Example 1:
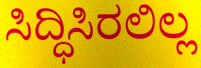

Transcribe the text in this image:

ಸಿದ್ಧಿಸಿರಲಿಲ್ಲ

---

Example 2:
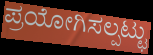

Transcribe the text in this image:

ಪ್ರಯೋಗಿಸಲ್ಪಟ್ಟು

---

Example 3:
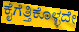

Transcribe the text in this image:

ಕೈಗೆತ್ತಿಕೊಳ್ಳದೇ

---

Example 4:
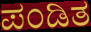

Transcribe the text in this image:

ಪಂಡಿತ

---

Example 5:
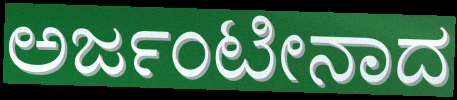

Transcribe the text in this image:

ಅರ್ಜಂಟೀನಾದ